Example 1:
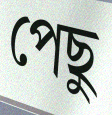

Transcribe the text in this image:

পেছু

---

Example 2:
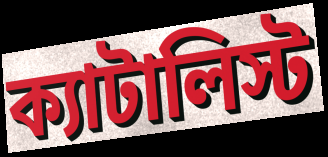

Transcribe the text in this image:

ক্যাটালিস্ট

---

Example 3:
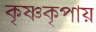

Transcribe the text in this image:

কৃষ্ণকৃপায়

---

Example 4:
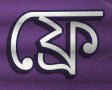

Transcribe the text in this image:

ফ্রে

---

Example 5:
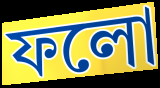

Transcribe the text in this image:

ফলো